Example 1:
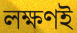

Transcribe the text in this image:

লক্ষণই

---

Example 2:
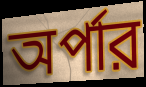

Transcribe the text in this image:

অর্পার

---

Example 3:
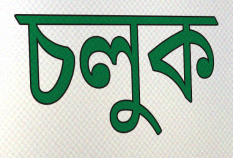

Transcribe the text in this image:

চলুক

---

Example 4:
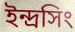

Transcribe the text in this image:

ইন্দ্রসিং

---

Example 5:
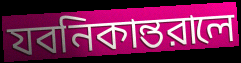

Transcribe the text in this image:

যবনিকান্তরালে